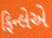
ફિન્લેએ